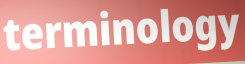
terminology